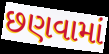
છણવામાં